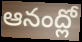
ఆనంద్లో